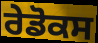
ਰੇਡੋਕਸ